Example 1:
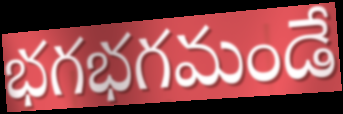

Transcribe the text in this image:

భగభగమండే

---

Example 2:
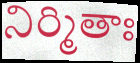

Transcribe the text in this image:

నిర్మితాః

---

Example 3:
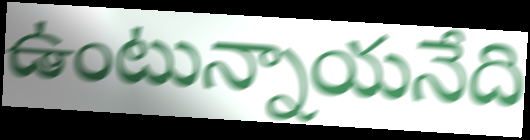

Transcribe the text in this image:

ఉంటున్నాయనేది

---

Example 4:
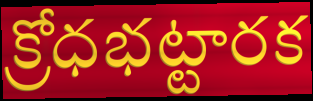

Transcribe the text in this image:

క్రోధభట్టారక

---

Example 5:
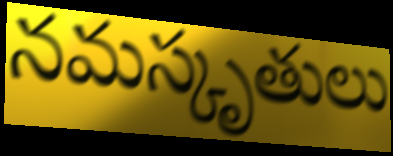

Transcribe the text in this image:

నమస్కృతులు